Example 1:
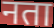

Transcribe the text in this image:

नता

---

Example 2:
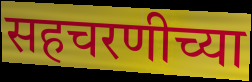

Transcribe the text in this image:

सहचरणीच्या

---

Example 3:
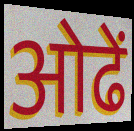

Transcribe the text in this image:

ओढें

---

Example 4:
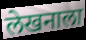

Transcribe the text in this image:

लेखनाला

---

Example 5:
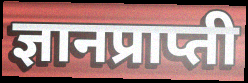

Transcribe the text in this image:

ज्ञानप्राप्ती